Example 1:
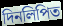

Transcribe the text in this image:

দিনলিপিত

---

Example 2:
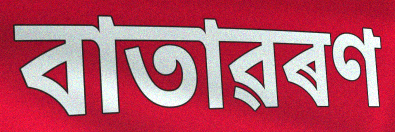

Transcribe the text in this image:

বাতাৱৰণ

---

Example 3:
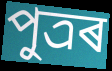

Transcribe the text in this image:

পুত্ৰৰ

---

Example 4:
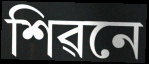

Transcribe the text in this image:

শিৱনে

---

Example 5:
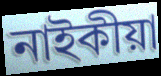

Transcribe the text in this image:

নাইকীয়া